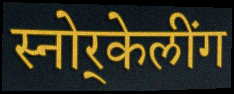
स्नोर्केलींग